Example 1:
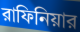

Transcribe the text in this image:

রাফিনিয়ার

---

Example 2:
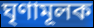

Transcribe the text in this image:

ঘৃণামূলক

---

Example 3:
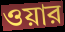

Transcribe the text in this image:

ওয়ার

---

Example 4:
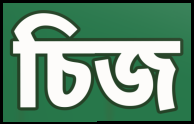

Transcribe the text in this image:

চিজ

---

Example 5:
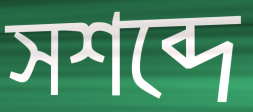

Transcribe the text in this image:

সশব্দে